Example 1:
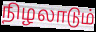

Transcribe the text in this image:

நிழலாடும்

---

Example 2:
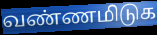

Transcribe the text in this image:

வண்ணமிடுக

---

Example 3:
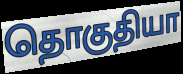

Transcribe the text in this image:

தொகுதியா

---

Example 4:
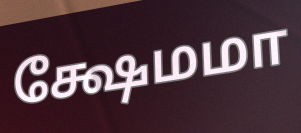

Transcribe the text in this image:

க்ஷேமமா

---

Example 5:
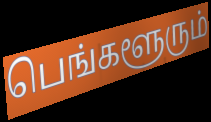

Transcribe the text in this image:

பெங்களூரும்